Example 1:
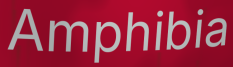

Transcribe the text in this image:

Amphibia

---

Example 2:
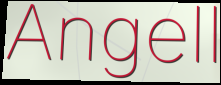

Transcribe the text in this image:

Angell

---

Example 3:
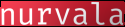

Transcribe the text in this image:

nurvala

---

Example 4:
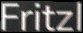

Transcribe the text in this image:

Fritzl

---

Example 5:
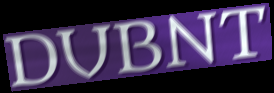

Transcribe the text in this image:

DUBNT